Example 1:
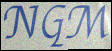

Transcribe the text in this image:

NGM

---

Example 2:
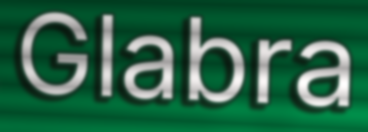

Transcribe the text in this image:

Glabra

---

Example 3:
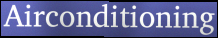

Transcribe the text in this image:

Airconditioning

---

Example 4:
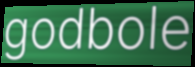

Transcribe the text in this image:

godbole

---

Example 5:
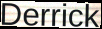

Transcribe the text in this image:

Derrick